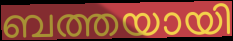
ബത്തയായി